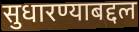
सुधारण्याबद्दल